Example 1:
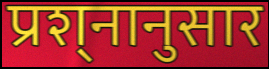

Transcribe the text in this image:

प्रश्नानुसार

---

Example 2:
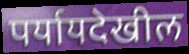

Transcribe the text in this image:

पर्यायदेखील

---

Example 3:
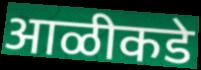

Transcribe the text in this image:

आळीकडे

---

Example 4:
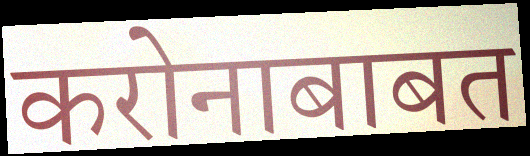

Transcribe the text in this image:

करोनाबाबत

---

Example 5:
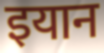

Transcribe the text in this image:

इयान